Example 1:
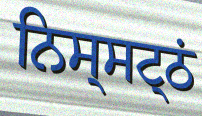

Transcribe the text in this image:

ਨਿਸ੍ਸਟ੍ਠਂ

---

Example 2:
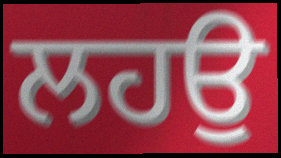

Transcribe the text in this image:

ਲਹਉ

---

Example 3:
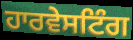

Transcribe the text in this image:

ਹਾਰਵੇਸਟਿੰਗ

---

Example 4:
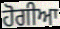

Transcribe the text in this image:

ਹੋਗੀਆ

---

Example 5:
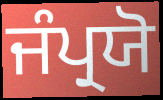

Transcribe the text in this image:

ਜੰਪ੍ਰਯੋ